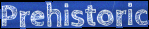
Prehistoric